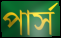
পার্স